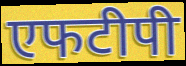
एफटीपी